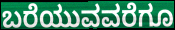
ಬರೆಯುವವರೆಗೂ